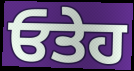
ਓਤੇਹ